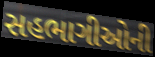
સહભાગીઓની